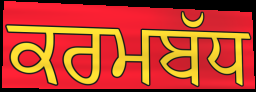
ਕਰਮਬੱਧ